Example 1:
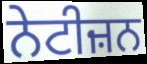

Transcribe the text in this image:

ਨੇਟੀਜ਼ਨ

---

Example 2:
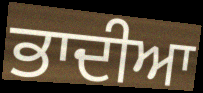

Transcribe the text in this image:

ਭਾਦੀਆ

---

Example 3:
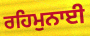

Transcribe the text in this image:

ਰਹਿਮੁਨਾਈ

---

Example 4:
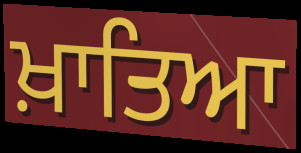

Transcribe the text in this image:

ਖ਼ਾਤਿਆ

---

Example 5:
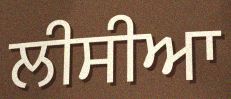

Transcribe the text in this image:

ਲੀਸੀਆ